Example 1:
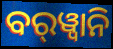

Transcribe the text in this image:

ବର୍‍ୱ୍ୱାନି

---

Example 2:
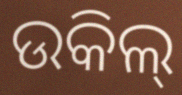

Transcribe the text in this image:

ଉକିଲ୍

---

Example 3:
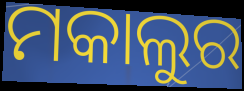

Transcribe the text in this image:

ମକାଲୁର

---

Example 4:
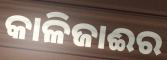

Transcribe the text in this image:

କାଳିଜାଈର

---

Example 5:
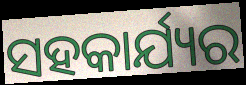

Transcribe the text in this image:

ସହକାର୍ଯ୍ୟର